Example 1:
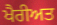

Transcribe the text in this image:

ਖੈਰੀਅਤ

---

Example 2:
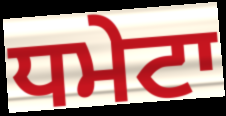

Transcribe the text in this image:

ਧਮੇਟਾ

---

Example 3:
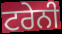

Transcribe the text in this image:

ਟਰੇਨੀ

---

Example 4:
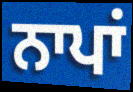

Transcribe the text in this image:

ਨਾਪਾਂ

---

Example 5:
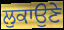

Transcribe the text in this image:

ਲੁਕਾਉਣੇ